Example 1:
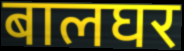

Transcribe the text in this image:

बालघर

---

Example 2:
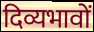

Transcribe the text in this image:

दिव्यभावों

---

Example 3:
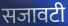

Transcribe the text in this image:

सजावटी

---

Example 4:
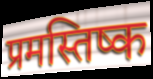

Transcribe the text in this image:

प्रमस्तिष्क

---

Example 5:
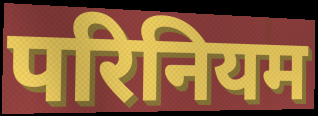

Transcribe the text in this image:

परिनियम